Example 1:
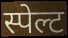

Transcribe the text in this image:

स्पेल्ट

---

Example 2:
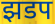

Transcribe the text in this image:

झडप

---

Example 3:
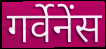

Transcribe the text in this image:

गर्वेनेंस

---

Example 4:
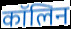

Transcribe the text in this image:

कॉलिन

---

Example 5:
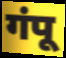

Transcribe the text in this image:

गंपू